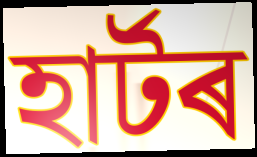
হাৰ্টৰ